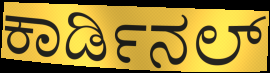
ಕಾರ್ಡಿನಲ್